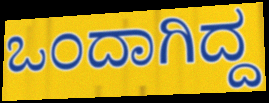
ಒಂದಾಗಿದ್ದ